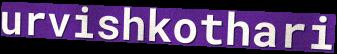
urvishkothari